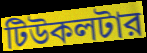
টিউকলটার